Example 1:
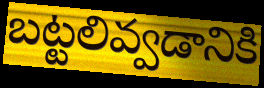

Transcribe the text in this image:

బట్టలివ్వడానికి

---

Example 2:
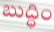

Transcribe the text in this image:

బుద్ధిం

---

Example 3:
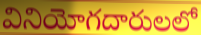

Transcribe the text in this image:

వినియోగదారులలో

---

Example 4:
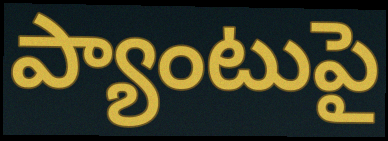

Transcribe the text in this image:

ప్యాంటుపై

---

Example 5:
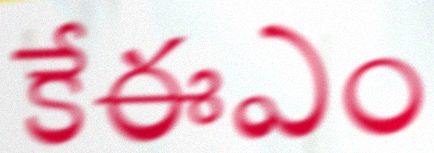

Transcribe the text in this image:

కేఈఎం